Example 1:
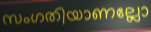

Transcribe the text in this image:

സംഗതിയാണല്ലോ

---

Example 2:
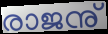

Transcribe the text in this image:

രാജനു്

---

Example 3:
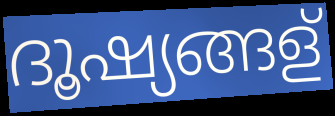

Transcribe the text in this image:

ദൂഷ്യങ്ങള്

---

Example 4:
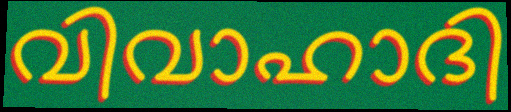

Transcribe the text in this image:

വിവാഹാദി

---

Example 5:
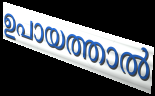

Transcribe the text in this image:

ഉപായത്താൽ